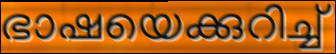
ഭാഷയെക്കുറിച്ച്